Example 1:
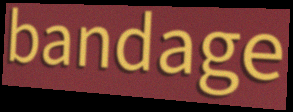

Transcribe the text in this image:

bandage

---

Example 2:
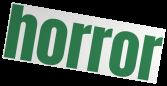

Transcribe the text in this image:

horror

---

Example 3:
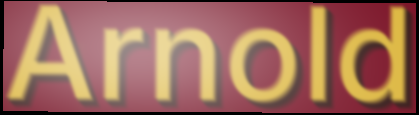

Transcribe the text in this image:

Arnold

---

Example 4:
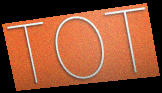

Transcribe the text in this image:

TOT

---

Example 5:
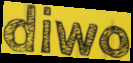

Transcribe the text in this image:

diwo